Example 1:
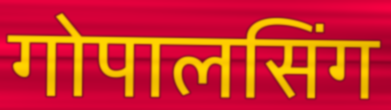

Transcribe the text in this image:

गोपालसिंग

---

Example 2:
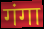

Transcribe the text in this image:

गंगा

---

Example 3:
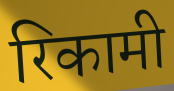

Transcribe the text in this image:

रिकामी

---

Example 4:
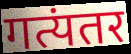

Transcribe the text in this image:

गत्यंतर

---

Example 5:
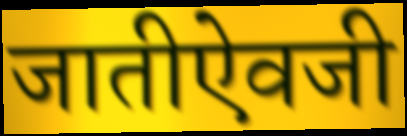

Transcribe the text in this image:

जातीऐवजी